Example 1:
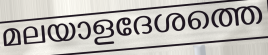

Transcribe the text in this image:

മലയാളദേശത്തെ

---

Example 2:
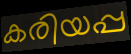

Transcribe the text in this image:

കരിയപ്പ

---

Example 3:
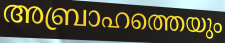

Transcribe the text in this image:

അബ്രാഹത്തെയും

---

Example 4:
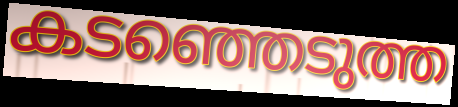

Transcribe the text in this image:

കടഞ്ഞെടുത്ത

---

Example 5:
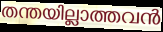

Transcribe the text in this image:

തന്തയില്ലാത്തവൻ